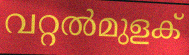
വറ്റൽമുളക്